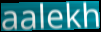
aalekh